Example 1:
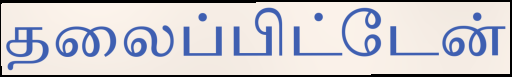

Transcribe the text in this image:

தலைப்பிட்டேன்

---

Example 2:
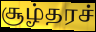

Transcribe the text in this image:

சூழ்தரச்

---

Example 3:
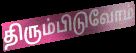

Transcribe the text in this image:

திரும்பிடுவோம்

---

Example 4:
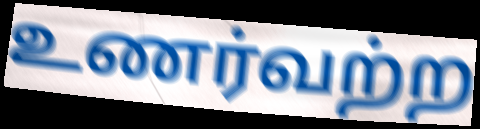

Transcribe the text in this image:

உணர்வற்ற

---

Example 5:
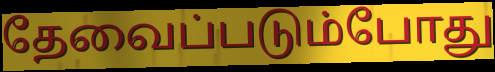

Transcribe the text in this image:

தேவைப்படும்போது